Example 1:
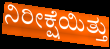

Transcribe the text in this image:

ನಿರೀಕ್ಷೆಯಿತ್ತು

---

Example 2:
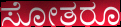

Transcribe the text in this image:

ಸೋತರೂ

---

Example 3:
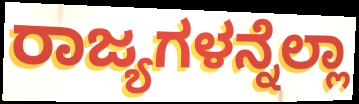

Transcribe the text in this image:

ರಾಜ್ಯಗಳನ್ನೆಲ್ಲಾ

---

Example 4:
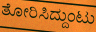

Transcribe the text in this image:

ತೋರಿಸಿದ್ದುಂಟು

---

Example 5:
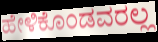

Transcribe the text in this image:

ಹೇಳಿಕೊಂಡವರಲ್ಲ